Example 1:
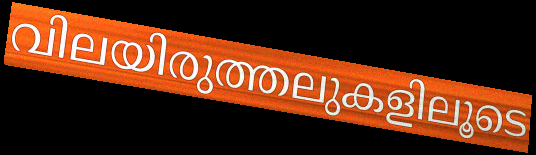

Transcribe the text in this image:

വിലയിരുത്തലുകളിലൂടെ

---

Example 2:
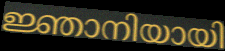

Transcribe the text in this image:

ജ്ഞാനിയായി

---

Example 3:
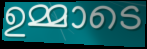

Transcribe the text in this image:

ഉമ്മാടെ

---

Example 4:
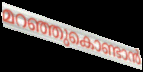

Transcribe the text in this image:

മറഞ്ഞുകൊണ്ടാൻ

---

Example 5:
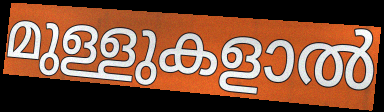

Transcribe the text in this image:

മുള്ളുകളാൽ